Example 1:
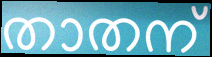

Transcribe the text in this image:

താതന്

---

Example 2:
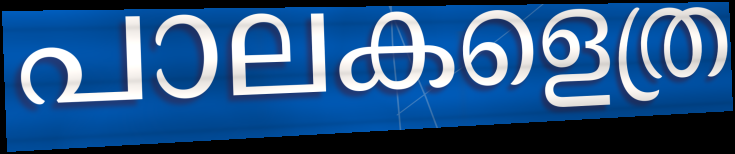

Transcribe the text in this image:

പാലകളെത്ര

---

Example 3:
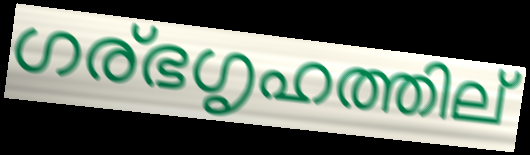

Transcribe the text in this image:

ഗര്ഭഗൃഹത്തില്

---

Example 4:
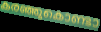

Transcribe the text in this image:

കരഞ്ഞുകൊണ്ടാ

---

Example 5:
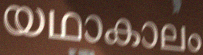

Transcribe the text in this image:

യഥാകാലം